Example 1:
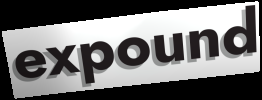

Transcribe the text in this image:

expound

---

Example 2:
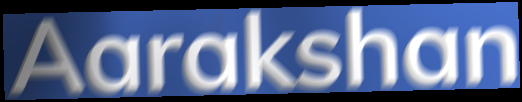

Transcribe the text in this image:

Aarakshan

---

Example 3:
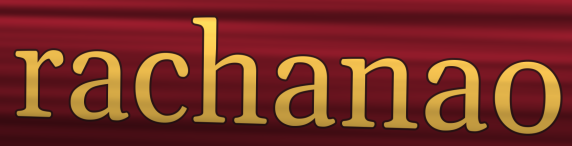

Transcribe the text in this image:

rachanao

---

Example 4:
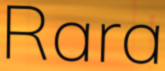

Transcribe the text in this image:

Rara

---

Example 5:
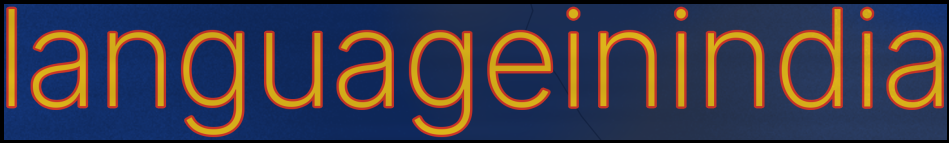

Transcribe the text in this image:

languageinindia